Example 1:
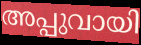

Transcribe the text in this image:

അപ്പുവായി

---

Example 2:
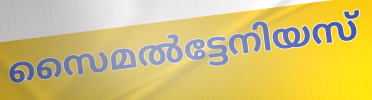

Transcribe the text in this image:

സൈമൽട്ടേനിയസ്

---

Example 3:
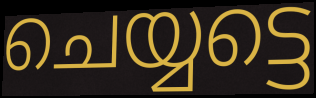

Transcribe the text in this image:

ചെയ്യട്ടെ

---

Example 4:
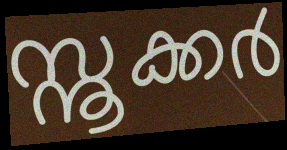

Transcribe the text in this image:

സ്നൂക്കർ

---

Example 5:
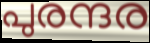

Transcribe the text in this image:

പുരന്ദര